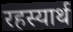
रहस्यार्थ